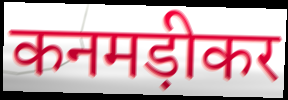
कनमड़ीकर